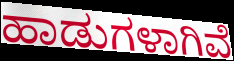
ಹಾಡುಗಳಾಗಿವೆ